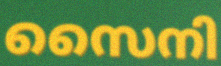
സൈനി